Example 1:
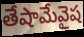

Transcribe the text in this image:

తేషామేవైష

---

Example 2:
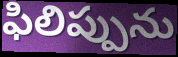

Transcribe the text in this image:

ఫిలిప్పును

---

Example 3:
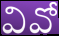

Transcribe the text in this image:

వివో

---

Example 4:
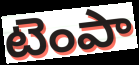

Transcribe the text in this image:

టెంపా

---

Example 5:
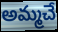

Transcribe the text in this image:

అమ్మచే